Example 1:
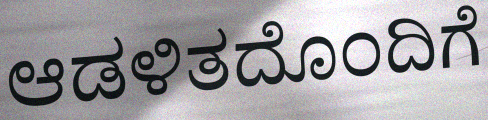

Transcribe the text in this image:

ಆಡಳಿತದೊಂದಿಗೆ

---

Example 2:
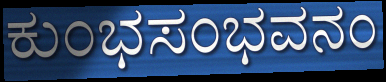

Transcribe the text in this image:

ಕುಂಭಸಂಭವನಂ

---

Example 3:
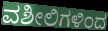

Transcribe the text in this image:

ವಶೀಲಿಗಳಿಂದ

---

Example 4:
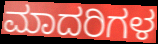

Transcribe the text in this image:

ಮಾದರಿಗಳ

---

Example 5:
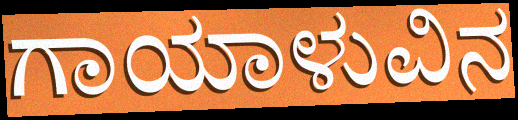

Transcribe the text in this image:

ಗಾಯಾಳುವಿನ